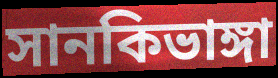
সানকিভাঙ্গা